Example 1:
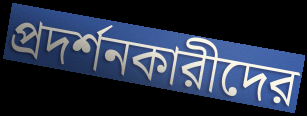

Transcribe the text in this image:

প্রদর্শনকারীদের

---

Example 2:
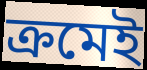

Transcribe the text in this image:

ক্রমেই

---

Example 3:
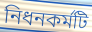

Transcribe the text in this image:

নিধনকর্মটি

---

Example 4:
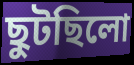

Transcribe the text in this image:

ছুটছিলো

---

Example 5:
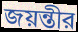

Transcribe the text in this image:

জয়ন্তীর